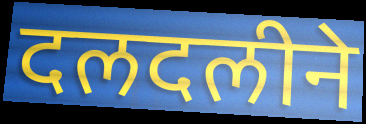
दलदलीने